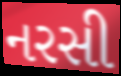
નરસી